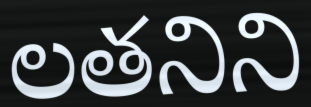
లతనిని